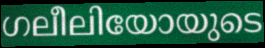
ഗലീലിയോയുടെ